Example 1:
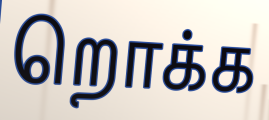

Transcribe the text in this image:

றொக்க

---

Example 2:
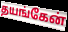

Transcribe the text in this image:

தயங்கேன்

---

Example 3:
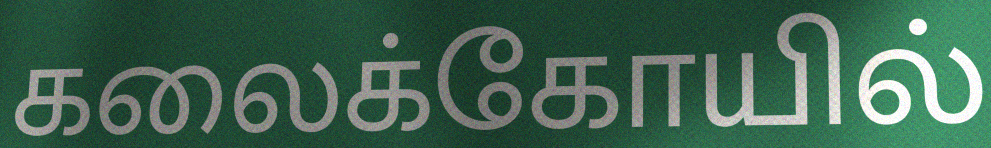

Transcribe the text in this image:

கலைக்கோயில்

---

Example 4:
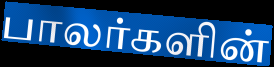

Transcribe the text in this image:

பாலர்களின்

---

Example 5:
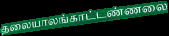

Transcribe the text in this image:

தலையாலங்காட்டண்ணலை